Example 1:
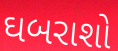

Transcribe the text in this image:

ઘબરાશો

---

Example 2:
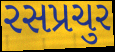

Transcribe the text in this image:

રસપ્રચુર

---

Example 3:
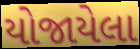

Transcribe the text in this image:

યોજાયેલા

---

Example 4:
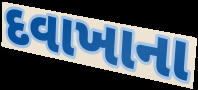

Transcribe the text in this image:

દવાખાના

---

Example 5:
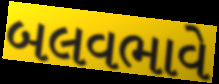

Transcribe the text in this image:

બલવભાવે